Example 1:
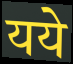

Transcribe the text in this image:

यये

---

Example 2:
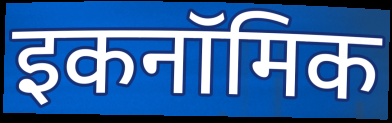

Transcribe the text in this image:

इकनॉमिक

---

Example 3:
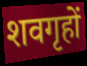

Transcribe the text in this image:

शवगृहों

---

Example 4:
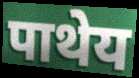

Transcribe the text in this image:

पाथेय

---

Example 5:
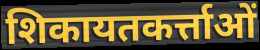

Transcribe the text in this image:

शिकायतकर्त्ताओं